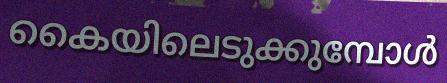
കൈയിലെടുക്കുമ്പോൾ